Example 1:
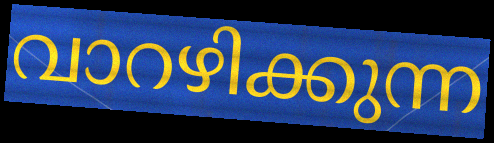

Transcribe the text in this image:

വാറഴിക്കുന്ന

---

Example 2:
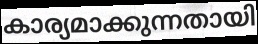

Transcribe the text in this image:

കാര്യമാക്കുന്നതായി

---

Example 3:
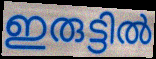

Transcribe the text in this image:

ഇരുട്ടിൽ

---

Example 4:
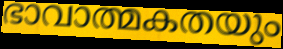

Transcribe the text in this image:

ഭാവാത്മകതയും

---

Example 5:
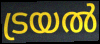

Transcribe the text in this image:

ട്രയൽ